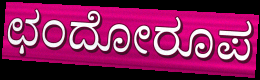
ಛಂದೋರೂಪ